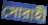
সোরাহী